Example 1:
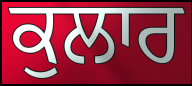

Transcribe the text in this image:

ਕੁਲਾਰ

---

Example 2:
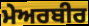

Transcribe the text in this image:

ਮੇਅਰਬੀਰ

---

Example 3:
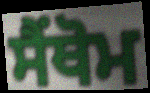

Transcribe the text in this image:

ਸੈਂਥੋਮ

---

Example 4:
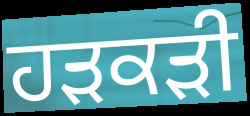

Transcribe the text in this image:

ਹੜਕੜੀ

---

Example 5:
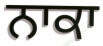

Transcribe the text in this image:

ਨਾਕਾ